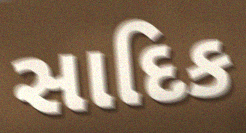
સાદિક